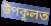
উপকূলত